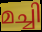
മച്ചി